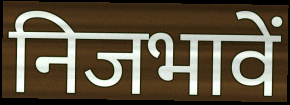
निजभावें